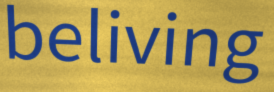
beliving